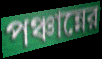
পঞ্চান্নের